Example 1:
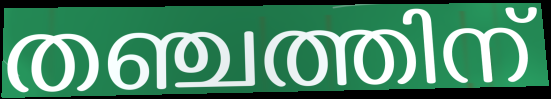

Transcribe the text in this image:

തഞ്ചത്തിന്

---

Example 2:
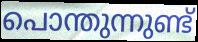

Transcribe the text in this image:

പൊന്തുന്നുണ്ട്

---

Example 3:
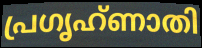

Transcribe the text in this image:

പ്രഗൃഹ്ണാതി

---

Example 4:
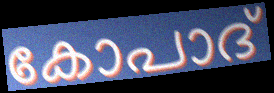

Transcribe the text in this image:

കോപാദ്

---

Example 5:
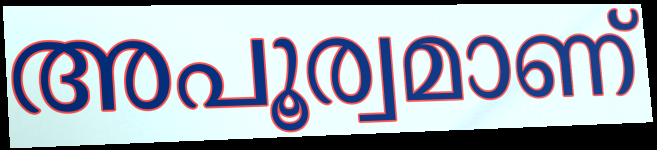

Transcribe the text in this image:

അപൂര്വമാണ്